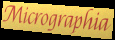
Micrographia